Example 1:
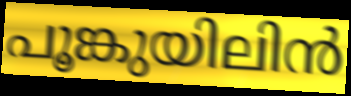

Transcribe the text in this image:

പൂങ്കുയിലിൻ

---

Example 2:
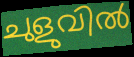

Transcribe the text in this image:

ചുളുവിൽ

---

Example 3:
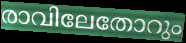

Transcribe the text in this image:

രാവിലേതോറും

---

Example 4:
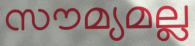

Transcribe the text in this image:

സൗമ്യമല്ല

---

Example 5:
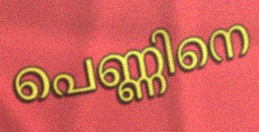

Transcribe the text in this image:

പെണ്ണിനെ